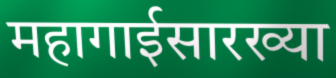
महागाईसारख्या